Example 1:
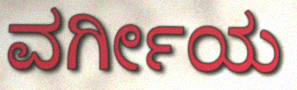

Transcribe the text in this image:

ವರ್ಗೀಯ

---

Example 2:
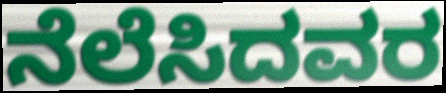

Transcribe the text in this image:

ನೆಲೆಸಿದವರ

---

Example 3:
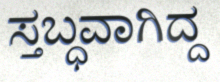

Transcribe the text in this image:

ಸ್ತಬ್ಧವಾಗಿದ್ದ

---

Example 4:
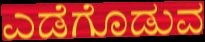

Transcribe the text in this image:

ಎಡೆಗೊಡುವ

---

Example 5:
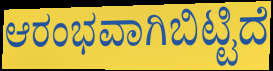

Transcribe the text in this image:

ಆರಂಭವಾಗಿಬಿಟ್ಟಿದೆ